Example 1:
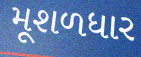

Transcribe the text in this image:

મૂશળધાર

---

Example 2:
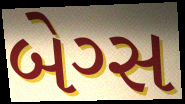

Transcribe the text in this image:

બેગ્સ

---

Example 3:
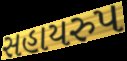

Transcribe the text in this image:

સહાયરુપ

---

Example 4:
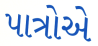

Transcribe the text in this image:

પાત્રોએ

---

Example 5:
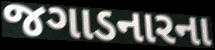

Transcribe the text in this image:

જગાડનારના